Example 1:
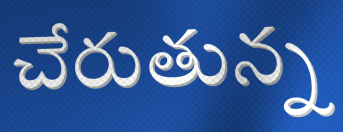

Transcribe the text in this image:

చేరుతున్న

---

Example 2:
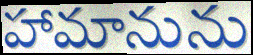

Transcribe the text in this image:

హామానును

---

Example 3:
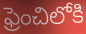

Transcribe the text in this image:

ఫ్రెంచిలోకి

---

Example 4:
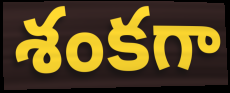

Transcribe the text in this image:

శంకగా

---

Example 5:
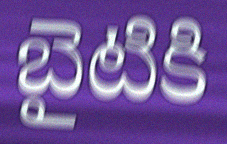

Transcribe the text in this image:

బైటికి